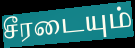
சீரடையும்